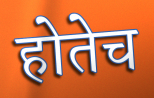
होतेच